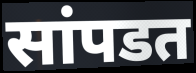
सांपडत